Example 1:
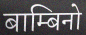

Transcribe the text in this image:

बाम्बिनो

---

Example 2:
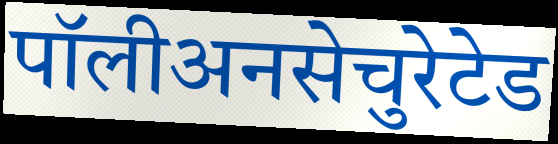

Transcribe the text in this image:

पॉलीअनसेचुरेटेड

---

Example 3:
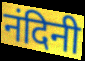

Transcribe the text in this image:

नंदिनी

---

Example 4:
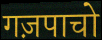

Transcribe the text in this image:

गज़पाचो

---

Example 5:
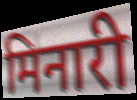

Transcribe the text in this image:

मिनारी